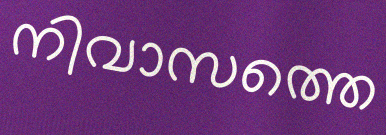
നിവാസത്തെ